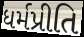
ધર્મપ્રીતિ